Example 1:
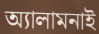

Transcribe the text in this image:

অ্যালামনাই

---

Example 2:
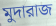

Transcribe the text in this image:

মুদারাজ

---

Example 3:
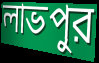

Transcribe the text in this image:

লাভপুর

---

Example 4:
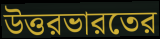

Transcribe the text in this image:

উত্তরভারতের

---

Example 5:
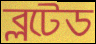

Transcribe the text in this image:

ব্লটেড